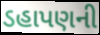
ડહાપણની